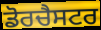
ਡੋਰਚੈਸਟਰ